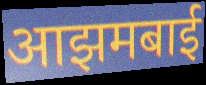
आझमबाई